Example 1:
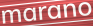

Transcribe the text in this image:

marano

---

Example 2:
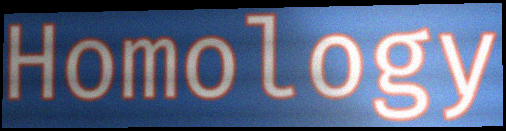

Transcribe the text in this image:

Homology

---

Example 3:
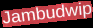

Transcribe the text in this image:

Jambudwip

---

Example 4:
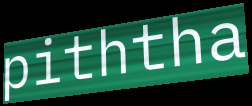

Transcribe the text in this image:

piththa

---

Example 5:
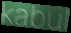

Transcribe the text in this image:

kabul